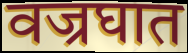
वज्रघात